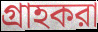
গ্রাহকরা